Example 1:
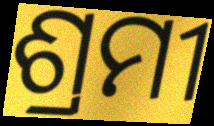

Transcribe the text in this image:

ଶ୍ରମୀ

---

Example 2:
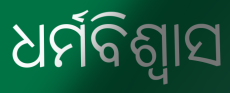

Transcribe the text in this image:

ଧର୍ମବିଶ୍ୱାସ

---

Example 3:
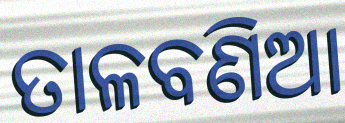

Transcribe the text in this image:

ତାଳବଣିଆ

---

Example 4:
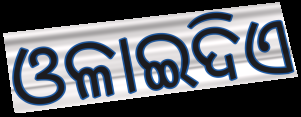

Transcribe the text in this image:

ଓଳାଇଦିଏ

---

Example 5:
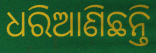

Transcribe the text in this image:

ଧରିଆଣିଛନ୍ତି